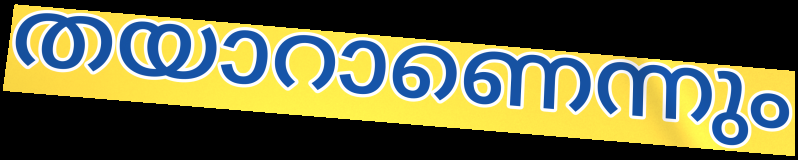
തയാറാണെന്നും